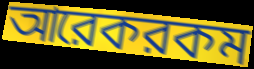
আরেকরকম